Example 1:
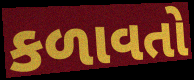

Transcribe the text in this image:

કળાવતો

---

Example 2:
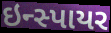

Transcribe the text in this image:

ઇન્સ્પાયર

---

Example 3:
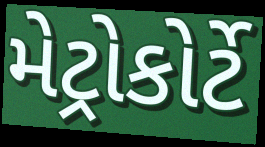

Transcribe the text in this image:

મેટ્રોકોર્ટે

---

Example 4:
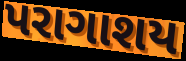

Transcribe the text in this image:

પરાગાશય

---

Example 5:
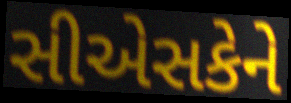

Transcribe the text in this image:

સીએસકેને